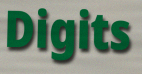
Digits